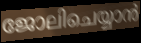
ജോലിചെയ്യാൻ